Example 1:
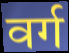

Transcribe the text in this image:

वर्ग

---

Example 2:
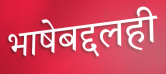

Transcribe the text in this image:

भाषेबद्दलही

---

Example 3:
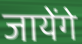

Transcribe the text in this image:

जायेंगे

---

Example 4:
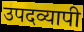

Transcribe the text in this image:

उपदव्यापी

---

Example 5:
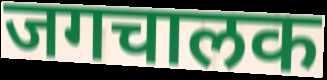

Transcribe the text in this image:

जगचालक